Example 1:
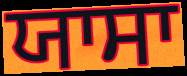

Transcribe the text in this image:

ਯਾਸਾ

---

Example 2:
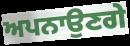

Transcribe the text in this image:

ਅਪਨਾਉਣਗੇ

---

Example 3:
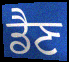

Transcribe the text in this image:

ਡੈਣ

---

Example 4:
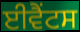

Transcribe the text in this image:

ਈਵੈਂਟਸ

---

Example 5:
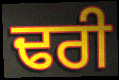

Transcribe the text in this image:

ਢਰੀ